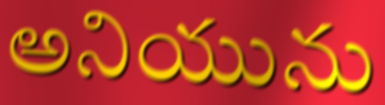
అనియును